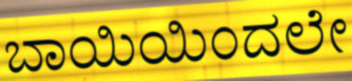
ಬಾಯಿಯಿಂದಲೇ